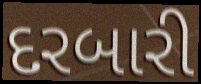
દરબારી